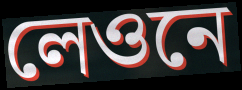
লেওনে